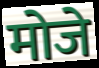
मोजे